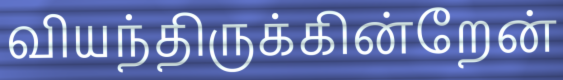
வியந்திருக்கின்றேன்